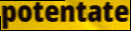
potentate